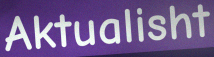
Aktualisht